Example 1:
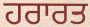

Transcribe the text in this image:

ਹਰਾਰਤ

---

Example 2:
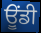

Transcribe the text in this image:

ਊਂਡੀ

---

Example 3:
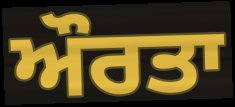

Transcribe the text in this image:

ਔਰਤਾ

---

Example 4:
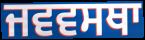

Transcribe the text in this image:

ਜਵਵਸਥਾ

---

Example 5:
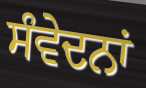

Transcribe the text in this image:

ਸੰਵੇਦਨਾਂ